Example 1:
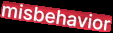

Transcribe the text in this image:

misbehavior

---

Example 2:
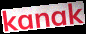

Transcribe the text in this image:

kanak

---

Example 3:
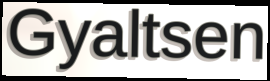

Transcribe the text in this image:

Gyaltsen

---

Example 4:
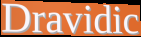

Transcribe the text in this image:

Dravidic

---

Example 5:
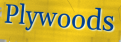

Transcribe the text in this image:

Plywoods